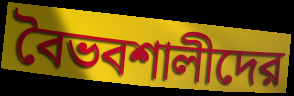
বৈভবশালীদের